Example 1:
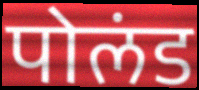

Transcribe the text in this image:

पोलंड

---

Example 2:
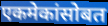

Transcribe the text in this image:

एकमेकांसोबत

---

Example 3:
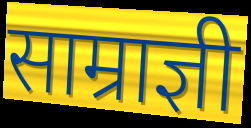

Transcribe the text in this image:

साम्राज्ञी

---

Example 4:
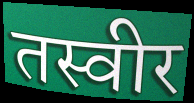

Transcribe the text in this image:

तस्वीर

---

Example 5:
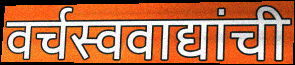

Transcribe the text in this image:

वर्चस्ववाद्यांची